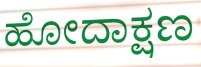
ಹೋದಾಕ್ಷಣ